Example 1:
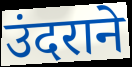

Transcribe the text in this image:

उंदराने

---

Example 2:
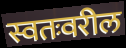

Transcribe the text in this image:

स्वतःवरील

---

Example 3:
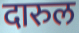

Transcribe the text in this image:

दारुल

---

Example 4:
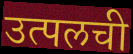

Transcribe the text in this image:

उत्पलची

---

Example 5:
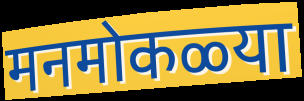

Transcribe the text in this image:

मनमोकळ्या